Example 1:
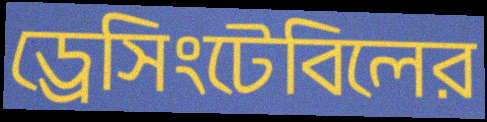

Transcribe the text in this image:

ড্রেসিংটেবিলের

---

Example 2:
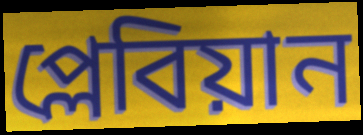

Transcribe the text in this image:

প্লেবিয়ান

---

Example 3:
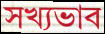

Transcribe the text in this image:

সখ্যভাব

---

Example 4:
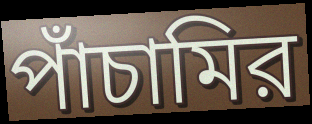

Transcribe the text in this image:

পাঁচামির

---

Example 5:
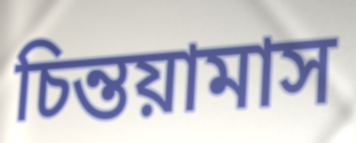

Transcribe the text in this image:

চিন্তয়ামাস